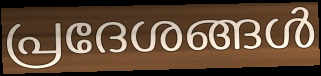
പ്രദേശങ്ങൾ